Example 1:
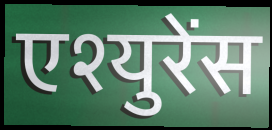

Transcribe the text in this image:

एश्युरेंस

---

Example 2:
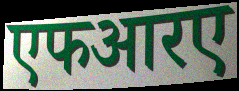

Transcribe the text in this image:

एफआरए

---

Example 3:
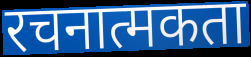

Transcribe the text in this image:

रचनात्मकता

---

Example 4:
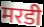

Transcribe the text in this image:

मरडी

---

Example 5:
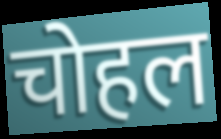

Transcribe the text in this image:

चोहल